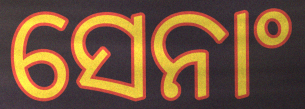
ସେନାଂ